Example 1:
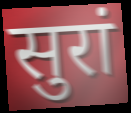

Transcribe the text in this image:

सुरां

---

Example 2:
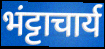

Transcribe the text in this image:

भंट्टाचार्य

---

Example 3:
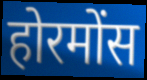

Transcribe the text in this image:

होरमोंस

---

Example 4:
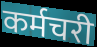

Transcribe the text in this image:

कर्मचरी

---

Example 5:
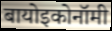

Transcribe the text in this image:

बायोइकोनॉमी